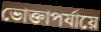
ভোক্তাপর্যায়ে